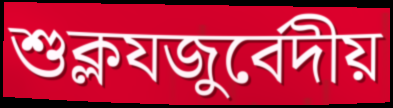
শুক্লযজুর্বেদীয়